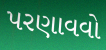
પરણાવવો